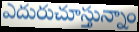
ఎదురుచూస్తున్నాం